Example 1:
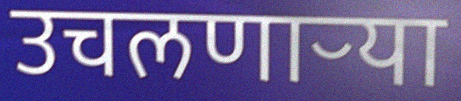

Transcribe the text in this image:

उचलणाऱ्या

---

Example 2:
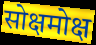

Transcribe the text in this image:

सोक्षमोक्ष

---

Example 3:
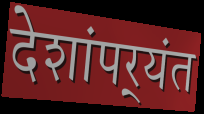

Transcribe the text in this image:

देशांपर्यंत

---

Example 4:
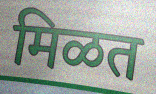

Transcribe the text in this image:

मिळत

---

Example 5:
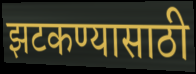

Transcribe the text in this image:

झटकण्यासाठी